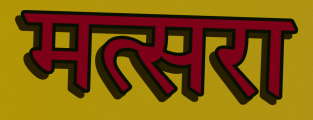
मत्सरा